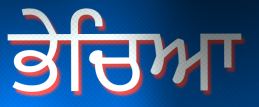
ਭੇਚਿਆ